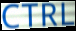
CTRL